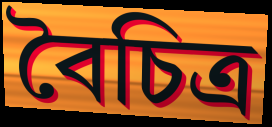
বৈচিত্র